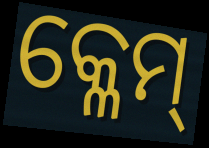
କ୍ଳେମ୍